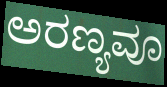
ಅರಣ್ಯವೂ